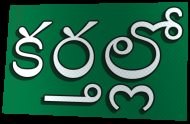
కర్తల్లో